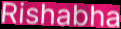
Rishabha